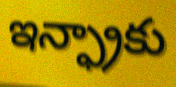
ఇన్ఫ్రాకు